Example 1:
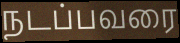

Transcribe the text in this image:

நடப்பவரை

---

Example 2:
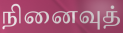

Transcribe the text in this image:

நினைவுத்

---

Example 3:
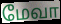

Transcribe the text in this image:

மேவா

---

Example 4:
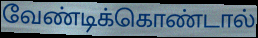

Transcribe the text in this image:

வேண்டிக்கொண்டால்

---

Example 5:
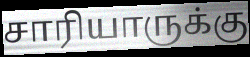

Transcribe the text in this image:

சாரியாருக்கு